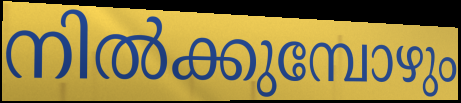
നിൽക്കുമ്പോഴും